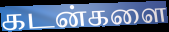
கடன்களை